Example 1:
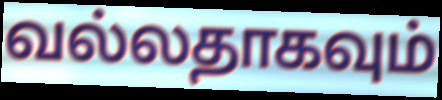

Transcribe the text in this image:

வல்லதாகவும்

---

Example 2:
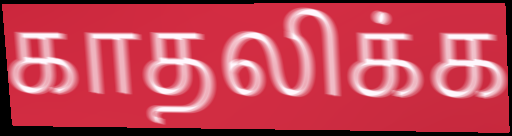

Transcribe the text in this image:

காதலிக்க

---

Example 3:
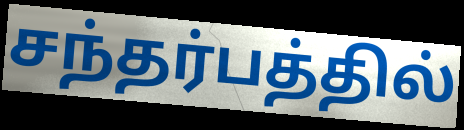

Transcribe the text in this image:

சந்தர்பத்தில்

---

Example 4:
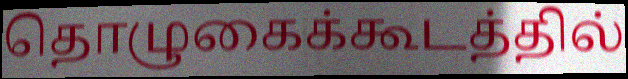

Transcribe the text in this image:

தொழுகைக்கூடத்தில்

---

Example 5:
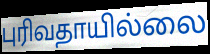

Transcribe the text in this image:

புரிவதாயில்லை